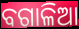
ବଗାଳିଆ